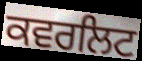
ਕਵਰਲਿਟ